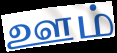
ஊம்